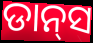
ଡାନ୍‍ସ